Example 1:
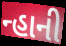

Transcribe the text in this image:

ન્હાની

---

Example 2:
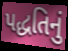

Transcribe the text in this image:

પદ્ધતિનું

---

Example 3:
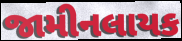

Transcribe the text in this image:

જામીનલાયક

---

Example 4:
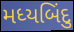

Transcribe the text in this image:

મધ્યબિંદુ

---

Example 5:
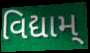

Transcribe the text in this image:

વિદ્યામ્